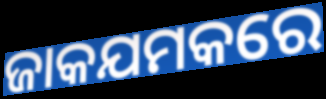
ଜାକଯମକରେ